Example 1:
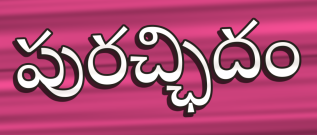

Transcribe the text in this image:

పురచ్ఛిదం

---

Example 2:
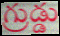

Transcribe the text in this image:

గ్రుడ్డు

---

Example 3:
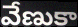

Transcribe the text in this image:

వేణుకా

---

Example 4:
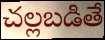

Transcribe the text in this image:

చల్లబడితే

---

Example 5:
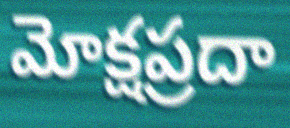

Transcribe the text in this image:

మోక్షప్రదా